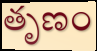
తృణం